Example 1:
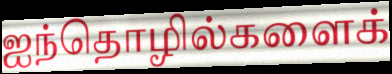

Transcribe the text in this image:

ஐந்தொழில்களைக்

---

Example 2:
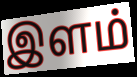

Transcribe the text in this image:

இளம்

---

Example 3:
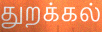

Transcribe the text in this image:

துறக்கல்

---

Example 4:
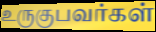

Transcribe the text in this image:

உருகுபவர்கள்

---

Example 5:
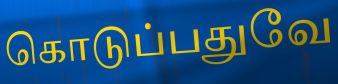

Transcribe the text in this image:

கொடுப்பதுவே